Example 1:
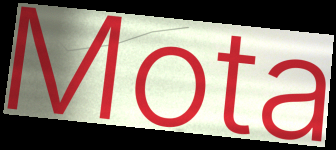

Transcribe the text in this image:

Mota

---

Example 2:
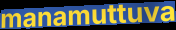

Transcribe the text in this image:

manamuttuva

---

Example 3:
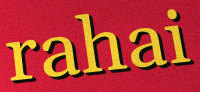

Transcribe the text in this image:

rahai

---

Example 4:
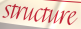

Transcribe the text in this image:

structure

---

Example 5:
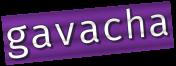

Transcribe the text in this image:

gavacha